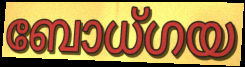
ബോധ്ഗയ